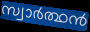
സ്വാർത്ഥൻ